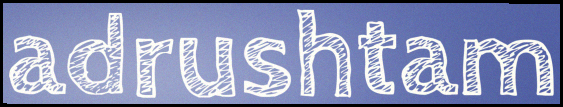
adrushtam